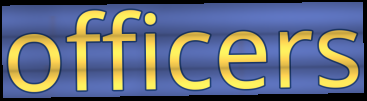
officers